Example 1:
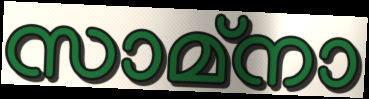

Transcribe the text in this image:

സാമ്നാ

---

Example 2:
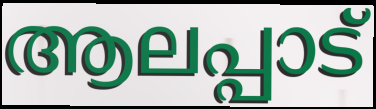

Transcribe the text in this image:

ആലപ്പാട്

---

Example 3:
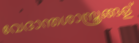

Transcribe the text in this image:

വേദാന്തശാസ്ത്രങ്ങള്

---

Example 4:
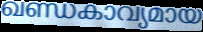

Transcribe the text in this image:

ഖണ്ഡകാവ്യമായ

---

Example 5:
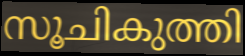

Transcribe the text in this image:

സൂചികുത്തി